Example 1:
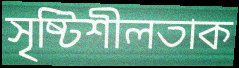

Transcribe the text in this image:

সৃষ্টিশীলতাক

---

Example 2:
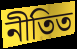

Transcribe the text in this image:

নীতিত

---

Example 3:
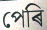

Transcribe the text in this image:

পেৰি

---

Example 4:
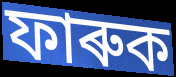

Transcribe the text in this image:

ফাৰুক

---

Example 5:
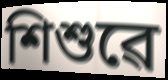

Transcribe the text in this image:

শিশুৱে